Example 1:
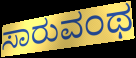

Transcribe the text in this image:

ಸಾರುವಂಥ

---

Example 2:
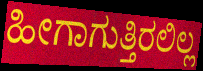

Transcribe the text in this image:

ಹೀಗಾಗುತ್ತಿರಲಿಲ್ಲ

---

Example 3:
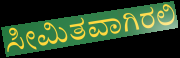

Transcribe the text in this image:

ಸೀಮಿತವಾಗಿರಲಿ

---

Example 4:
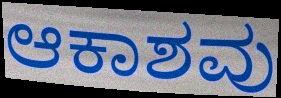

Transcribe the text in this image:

ಆಕಾಶವು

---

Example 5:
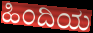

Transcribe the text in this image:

ಹಿಂದಿಯ